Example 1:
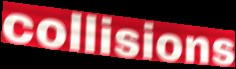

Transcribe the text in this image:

collisions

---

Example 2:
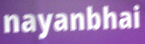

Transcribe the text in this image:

nayanbhai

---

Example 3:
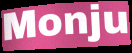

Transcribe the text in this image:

Monju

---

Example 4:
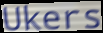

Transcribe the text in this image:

Ukers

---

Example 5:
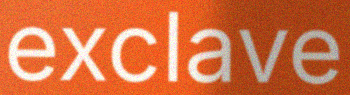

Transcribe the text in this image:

exclave